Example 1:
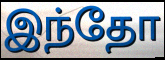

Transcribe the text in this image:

இந்தோ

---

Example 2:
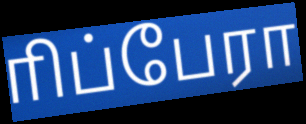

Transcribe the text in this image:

ரிப்பேரா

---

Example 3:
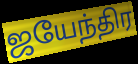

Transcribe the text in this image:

ஜயேந்திர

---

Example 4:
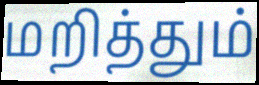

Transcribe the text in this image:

மறித்தும்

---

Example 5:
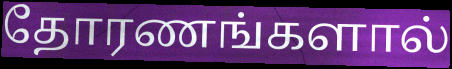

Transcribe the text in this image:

தோரணங்களால்